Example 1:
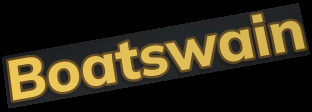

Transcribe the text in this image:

Boatswain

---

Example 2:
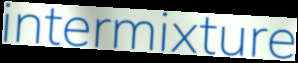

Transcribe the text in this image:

intermixture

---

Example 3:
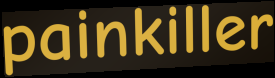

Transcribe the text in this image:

painkiller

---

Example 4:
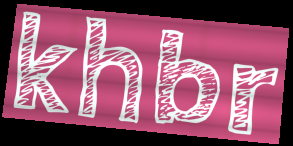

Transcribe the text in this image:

khbr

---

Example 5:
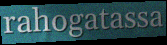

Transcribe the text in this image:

rahogatassa